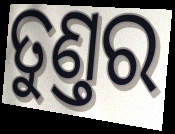
ତୁଣ୍ତର